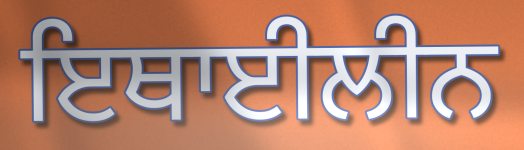
ਇਥਾਈਲੀਨ